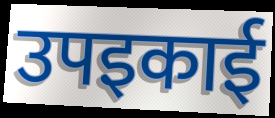
उपइकाई